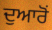
ਦੁਆਰੋਂ